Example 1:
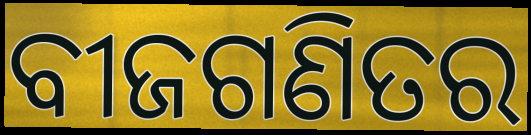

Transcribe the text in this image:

ବୀଜଗଣିତର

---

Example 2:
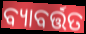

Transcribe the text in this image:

ବ୍ୟାବର୍ତ୍ତତ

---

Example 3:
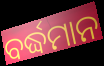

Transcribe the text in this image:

ବର୍ଦ୍ଧମାନ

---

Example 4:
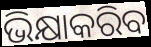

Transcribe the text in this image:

ଭିକ୍ଷାକରିବ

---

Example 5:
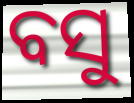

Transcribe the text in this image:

ବସୁ